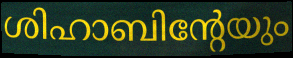
ശിഹാബിന്റേയും